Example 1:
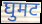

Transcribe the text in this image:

घुमट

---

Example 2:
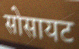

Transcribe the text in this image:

सोसायट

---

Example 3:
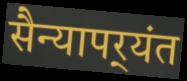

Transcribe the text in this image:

सैन्यापर्यंत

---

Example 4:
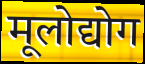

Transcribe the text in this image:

मूलोद्योग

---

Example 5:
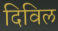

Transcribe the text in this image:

दिविल